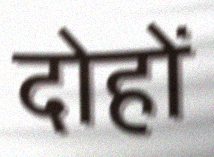
दोहों